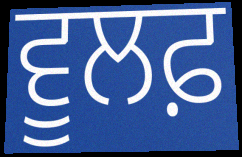
ਵੂਲਫ਼